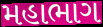
મહાભાગ